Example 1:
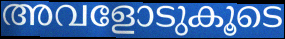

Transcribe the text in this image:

അവളോടുകൂടെ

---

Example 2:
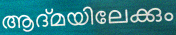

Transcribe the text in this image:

ആദ്മയിലേക്കും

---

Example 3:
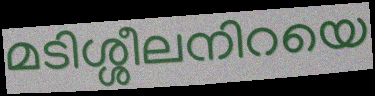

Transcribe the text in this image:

മടിശ്ശീലനിറയെ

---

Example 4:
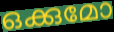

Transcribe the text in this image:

ഒക്കുമോ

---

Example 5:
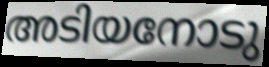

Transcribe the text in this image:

അടിയനോടു